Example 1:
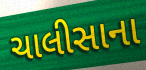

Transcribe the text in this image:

ચાલીસાના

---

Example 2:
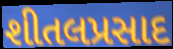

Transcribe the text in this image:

શીતલપ્રસાદ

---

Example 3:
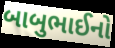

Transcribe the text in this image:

બાબુભાઈનો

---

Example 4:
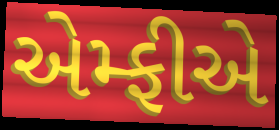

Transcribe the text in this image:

એમ્ફીએ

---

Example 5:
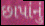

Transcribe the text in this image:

છાપાંનું